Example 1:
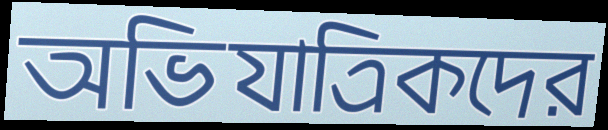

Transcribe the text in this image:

অভিযাত্রিকদের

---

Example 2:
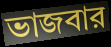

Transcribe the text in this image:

ভাজবার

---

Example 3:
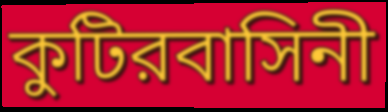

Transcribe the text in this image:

কুটিরবাসিনী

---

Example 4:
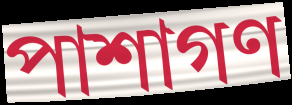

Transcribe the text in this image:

পাশাগণ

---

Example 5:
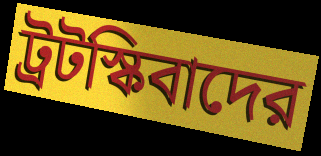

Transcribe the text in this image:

ট্রটস্কিবাদের